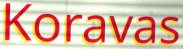
Koravas